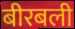
बीरबली